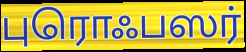
புரொஃபஸர்